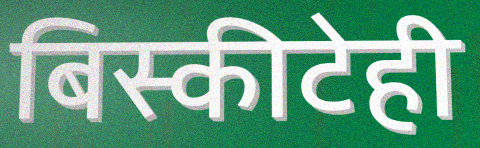
बिस्कीटेही